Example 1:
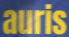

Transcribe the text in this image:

auris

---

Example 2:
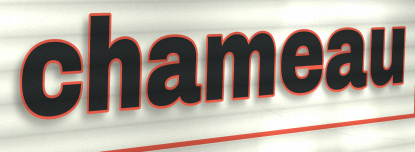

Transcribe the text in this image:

chameau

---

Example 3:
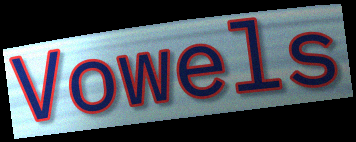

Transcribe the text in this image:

Vowels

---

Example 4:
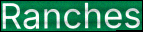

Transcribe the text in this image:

Ranches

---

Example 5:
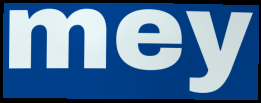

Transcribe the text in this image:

mey